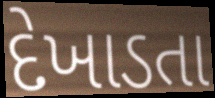
દેખાડતા